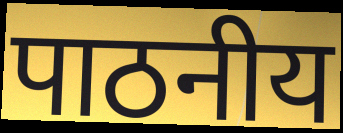
पाठनीय